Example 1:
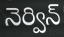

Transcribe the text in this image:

నెర్విన్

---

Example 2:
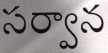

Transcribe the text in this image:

సర్వాన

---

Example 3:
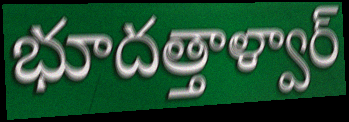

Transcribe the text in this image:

భూదత్తాళ్వార్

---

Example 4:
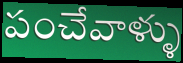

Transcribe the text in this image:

పంచేవాళ్ళు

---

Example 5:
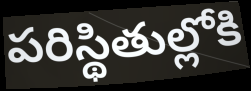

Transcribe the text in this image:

పరిస్థితుల్లోకి